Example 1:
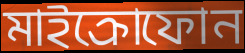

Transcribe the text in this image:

মাইক্রোফোন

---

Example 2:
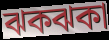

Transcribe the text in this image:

ঝকঝকা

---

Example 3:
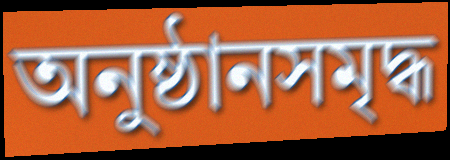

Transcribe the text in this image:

অনুষ্ঠানসমৃদ্ধ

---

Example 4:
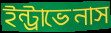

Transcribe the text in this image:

ইন্ট্রাভেনাস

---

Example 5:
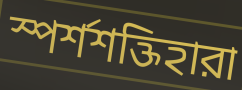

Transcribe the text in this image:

স্পর্শশক্তিহারা